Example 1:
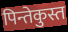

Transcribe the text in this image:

पिन्तेकुस्त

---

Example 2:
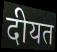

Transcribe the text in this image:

दीयत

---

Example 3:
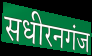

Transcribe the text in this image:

सधीरनगंज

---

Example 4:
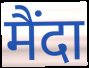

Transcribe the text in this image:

मैंदा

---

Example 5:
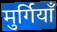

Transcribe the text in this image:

मुर्गियाँ